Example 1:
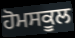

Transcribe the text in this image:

ਹੋਮਸਕੂਲ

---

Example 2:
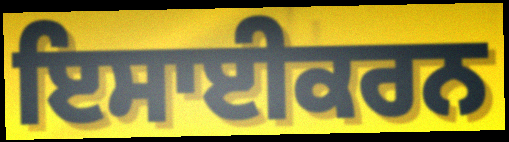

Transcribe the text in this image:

ਇਸਾਈਕਰਨ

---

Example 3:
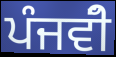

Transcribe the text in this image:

ਪੰਜਵੀਁ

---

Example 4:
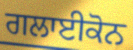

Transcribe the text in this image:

ਗਲਾਈਕੋਨ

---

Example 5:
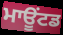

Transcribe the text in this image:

ਮਾਊਂਟਡ